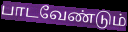
பாடவேண்டும்